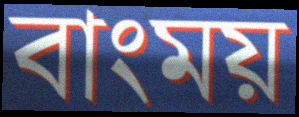
বাংময়